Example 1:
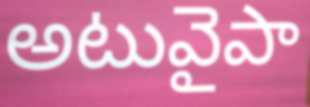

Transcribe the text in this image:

అటువైపా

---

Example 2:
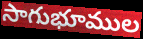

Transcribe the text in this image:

సాగుభూముల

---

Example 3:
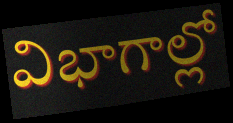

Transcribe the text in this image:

విభాగాల్లో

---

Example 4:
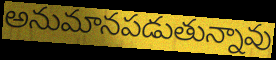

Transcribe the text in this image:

అనుమానపడుతున్నావు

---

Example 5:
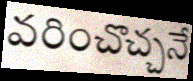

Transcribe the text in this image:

వరించొచ్చనే